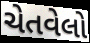
ચેતવેલો